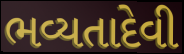
ભવ્યતાદેવી